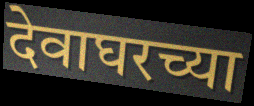
देवाघरच्या